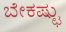
ಬೇಕಷ್ಟು